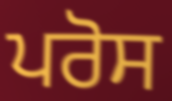
ਪਰੋਸ